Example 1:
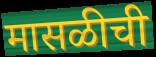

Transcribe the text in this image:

मासळीची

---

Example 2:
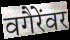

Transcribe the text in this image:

वगैरेंवर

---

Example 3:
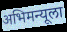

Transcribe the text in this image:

अभिमन्यूला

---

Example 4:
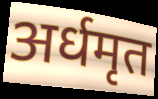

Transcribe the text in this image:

अर्धमृत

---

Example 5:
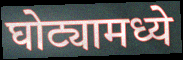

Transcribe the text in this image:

घोट्यामध्ये